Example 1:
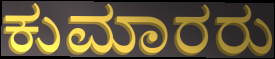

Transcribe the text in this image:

ಕುಮಾರರು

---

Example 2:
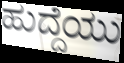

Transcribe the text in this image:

ಹುದ್ದೆಯು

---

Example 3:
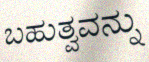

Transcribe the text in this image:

ಬಹುತ್ವವನ್ನು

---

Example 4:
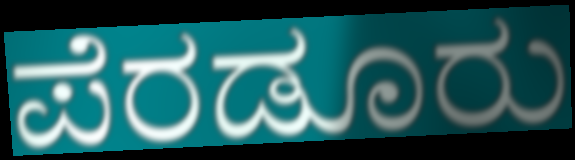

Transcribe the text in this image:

ಪೆರಡೂರು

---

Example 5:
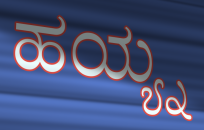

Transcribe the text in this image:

ಹಯ್ಯ್ನ